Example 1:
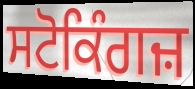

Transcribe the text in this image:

ਸਟੋਕਿੰਗਜ਼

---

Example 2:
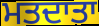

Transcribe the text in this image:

ਮਤਦਾਤਾ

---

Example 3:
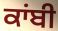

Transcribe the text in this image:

ਕਾਂਬੀ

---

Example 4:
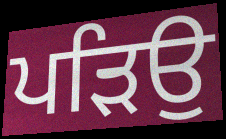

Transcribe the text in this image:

ਪੜਿਉ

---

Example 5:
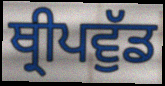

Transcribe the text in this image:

ਥ੍ਰੀਪਵੁੱਡ